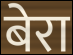
बेरा